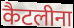
कैटलीना